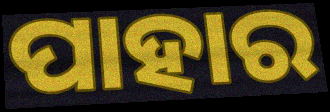
ପାହାର